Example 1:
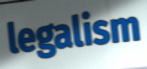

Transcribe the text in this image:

legalism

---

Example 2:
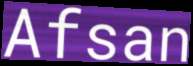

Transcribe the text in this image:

Afsan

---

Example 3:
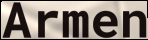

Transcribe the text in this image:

Armen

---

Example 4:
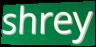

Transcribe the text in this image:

shrey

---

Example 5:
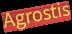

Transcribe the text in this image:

Agrostis